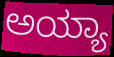
ಅಯ್ಯಾ